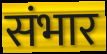
संभार